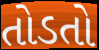
તોડતો